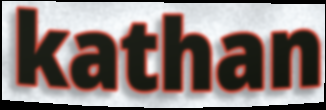
kathan